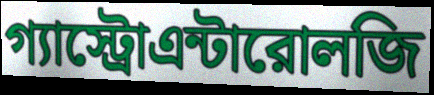
গ্যাস্ট্রোএন্টারোলজি